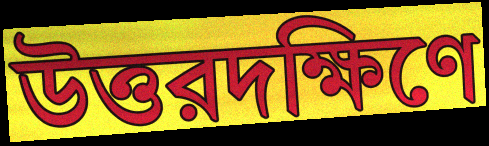
উত্তরদক্ষিণে